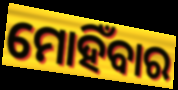
ମୋହିଁବାର